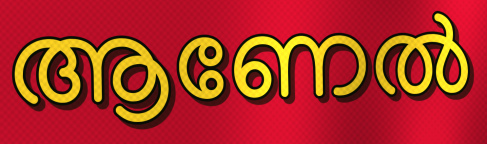
ആണേൽ